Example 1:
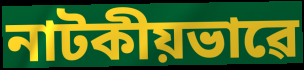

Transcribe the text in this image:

নাটকীয়ভাৱে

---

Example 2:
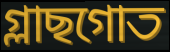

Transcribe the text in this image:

গ্লাছগোত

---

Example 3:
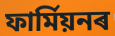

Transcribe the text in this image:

ফাৰ্মিয়নৰ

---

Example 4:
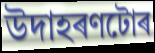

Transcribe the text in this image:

উদাহৰণটোৰ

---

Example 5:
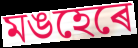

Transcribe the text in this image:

মঙহেৰে